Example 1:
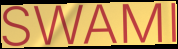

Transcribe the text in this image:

SWAMI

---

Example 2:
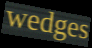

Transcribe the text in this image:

wedges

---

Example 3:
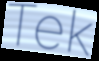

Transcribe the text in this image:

Tek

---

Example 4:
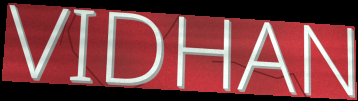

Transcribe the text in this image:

VIDHAN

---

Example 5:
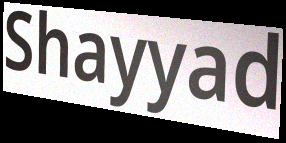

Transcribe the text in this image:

Shayyad